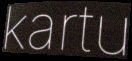
kartu